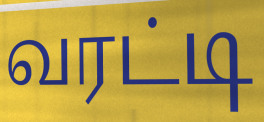
வரட்டி